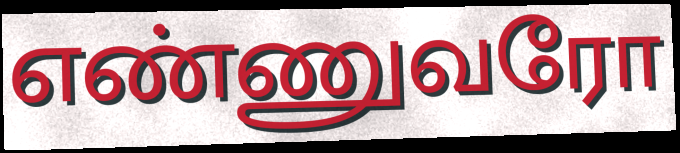
எண்ணுவரோ